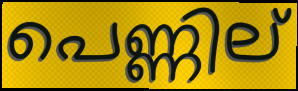
പെണ്ണില്